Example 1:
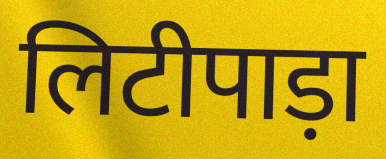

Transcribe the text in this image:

लिटीपाड़ा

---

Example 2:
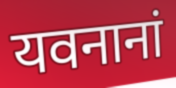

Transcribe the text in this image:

यवनानां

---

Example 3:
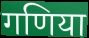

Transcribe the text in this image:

गणिया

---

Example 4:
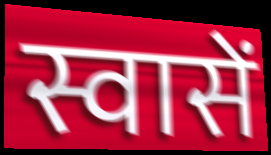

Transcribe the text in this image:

स्वासें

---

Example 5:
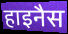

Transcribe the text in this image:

हाइनैस